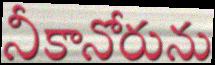
నీకానోరును